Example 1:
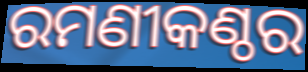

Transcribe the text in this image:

ରମଣୀକଣ୍ଠର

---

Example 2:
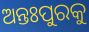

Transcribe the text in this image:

ଅନ୍ତଃପୁରକୁ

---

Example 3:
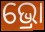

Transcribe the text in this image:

ଭ୍ରୋ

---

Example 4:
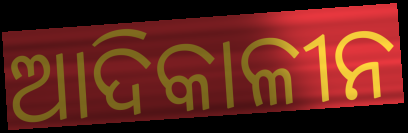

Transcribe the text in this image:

ଆଦିକାଳୀନ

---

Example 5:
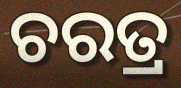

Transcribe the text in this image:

ଚରତ୍ର